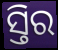
ସ୍ତିର